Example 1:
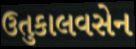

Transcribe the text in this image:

ઉતુકાલવસેન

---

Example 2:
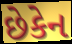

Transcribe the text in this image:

છેકેન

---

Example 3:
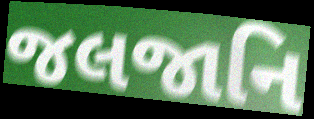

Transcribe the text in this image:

જલજાનિ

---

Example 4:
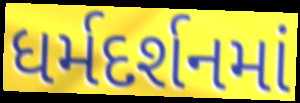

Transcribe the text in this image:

ધર્મદર્શનમાં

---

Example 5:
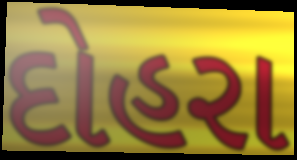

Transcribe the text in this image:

દોહરા